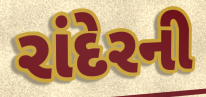
રાંદેરની